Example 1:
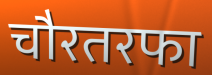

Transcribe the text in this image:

चौरतरफा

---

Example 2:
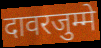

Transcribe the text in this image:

दावरजुम्मे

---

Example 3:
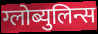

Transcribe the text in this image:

ग्लोब्युलिन्स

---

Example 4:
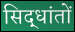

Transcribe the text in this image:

सिद्धांतों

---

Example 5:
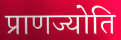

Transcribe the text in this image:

प्राणज्योति